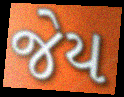
જેય